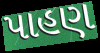
પાહણ